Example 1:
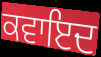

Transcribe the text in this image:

ਕਵਾਇਦ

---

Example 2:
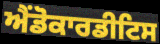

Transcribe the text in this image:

ਐਂਡੋਕਾਰਡੀਟਿਸ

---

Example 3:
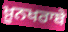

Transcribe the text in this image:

ਖ਼ੂਨਖਰਾਬੇ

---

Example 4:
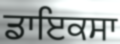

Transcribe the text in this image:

ਡਾਇਕਸਾ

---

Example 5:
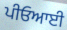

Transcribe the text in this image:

ਪੀਓਆਈ